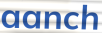
aanch